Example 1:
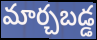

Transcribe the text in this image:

మార్చబడ్డ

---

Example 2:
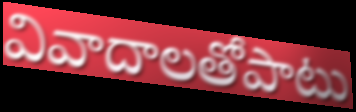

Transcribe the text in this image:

వివాదాలతోపాటు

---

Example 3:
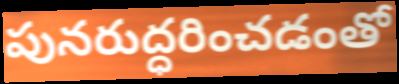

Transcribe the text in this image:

పునరుద్ధరించడంతో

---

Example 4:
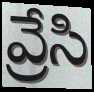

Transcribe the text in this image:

వ్రేసి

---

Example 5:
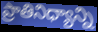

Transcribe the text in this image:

ప్రాతినిధ్యాన్ని